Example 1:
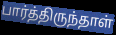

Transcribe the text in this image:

பார்த்திருந்தாள்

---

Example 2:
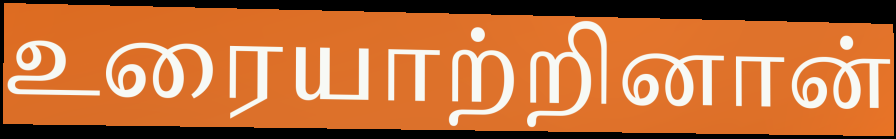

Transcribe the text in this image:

உரையாற்றினான்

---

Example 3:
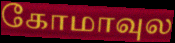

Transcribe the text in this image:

கோமாவுல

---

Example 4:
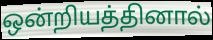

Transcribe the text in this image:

ஒன்றியத்தினால்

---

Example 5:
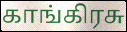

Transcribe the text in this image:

காங்கிரசு